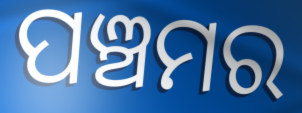
ପଞ୍ଚମର